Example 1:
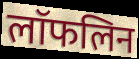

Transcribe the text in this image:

लॉफलिन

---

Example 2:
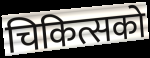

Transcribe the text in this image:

चिकित्सको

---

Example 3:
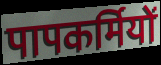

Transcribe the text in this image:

पापकर्मियों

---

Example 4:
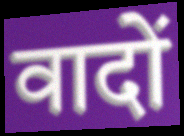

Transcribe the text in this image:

वादों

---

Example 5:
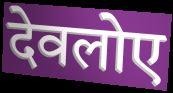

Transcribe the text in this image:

देवलोए